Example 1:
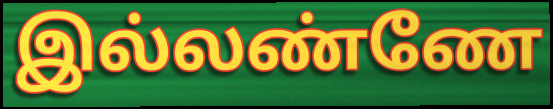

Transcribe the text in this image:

இல்லண்ணே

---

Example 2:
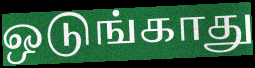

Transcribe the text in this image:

ஒடுங்காது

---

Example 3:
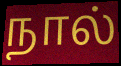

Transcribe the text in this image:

நால்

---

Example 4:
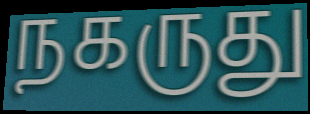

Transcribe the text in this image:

நகருது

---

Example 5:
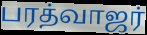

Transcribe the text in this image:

பரத்வாஜர்